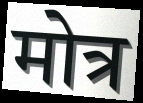
मोत्र